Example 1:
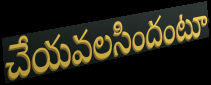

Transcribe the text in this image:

చేయవలసిందంటూ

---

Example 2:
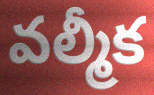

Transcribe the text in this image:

వల్మీక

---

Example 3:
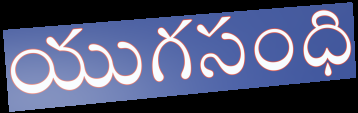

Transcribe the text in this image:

యుగసంధి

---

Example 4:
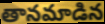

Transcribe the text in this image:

తానమాడిన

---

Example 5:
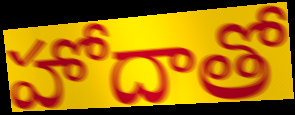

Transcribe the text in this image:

హోదాతో